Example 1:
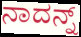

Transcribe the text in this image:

ನಾದನ್ನ್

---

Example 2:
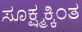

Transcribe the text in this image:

ಸೂಕ್ಷ್ಮಕ್ಕಿಂತ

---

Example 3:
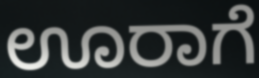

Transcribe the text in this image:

ಊರಾಗೆ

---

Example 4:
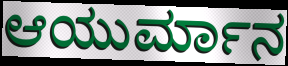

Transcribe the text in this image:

ಆಯುರ್ಮಾನ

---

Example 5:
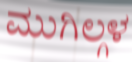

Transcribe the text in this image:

ಮುಗಿಲ್ಗಳ